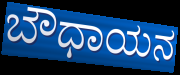
ಬೌಧಾಯನ